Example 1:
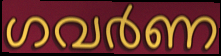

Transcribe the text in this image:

ഗവർണ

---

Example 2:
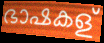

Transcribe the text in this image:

ഭാഷകള്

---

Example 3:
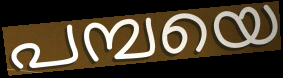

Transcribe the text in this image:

പമ്പയെ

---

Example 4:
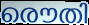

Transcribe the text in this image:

രൌതി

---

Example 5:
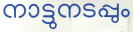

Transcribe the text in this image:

നാട്ടുനടപ്പും